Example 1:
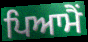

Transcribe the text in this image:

ਪਿਆਮੈਂ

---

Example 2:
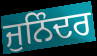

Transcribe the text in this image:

ਜੁਨਿੰਦਰ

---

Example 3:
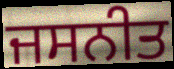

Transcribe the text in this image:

ਜਸਨੀਤ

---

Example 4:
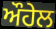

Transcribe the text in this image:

ਔਹੇਲ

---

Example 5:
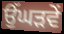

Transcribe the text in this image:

ਉੱਘੜਵੇਂ